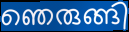
ഞെരുങ്ങി